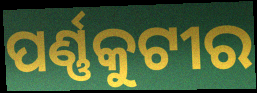
ପର୍ଣ୍ଣକୁଟୀର